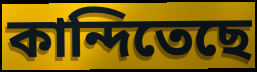
কান্দিতেছে